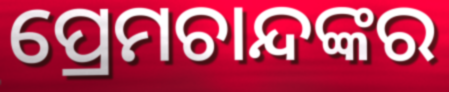
ପ୍ରେମଚାନ୍ଦଙ୍କର